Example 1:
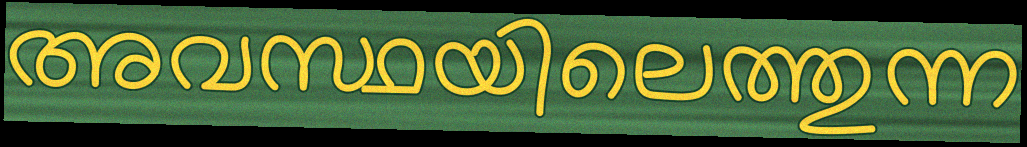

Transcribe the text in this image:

അവസ്ഥയിലെത്തുന്ന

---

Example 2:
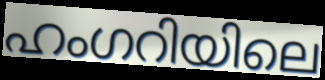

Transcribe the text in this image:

ഹംഗറിയിലെ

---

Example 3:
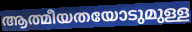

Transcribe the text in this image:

ആത്മീയതയോടുമുള്ള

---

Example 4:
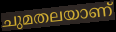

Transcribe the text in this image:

ചുമതലയാണ്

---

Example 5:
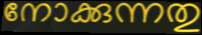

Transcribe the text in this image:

നോക്കുന്നതു